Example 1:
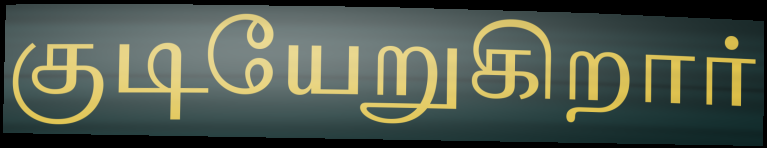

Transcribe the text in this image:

குடியேறுகிறார்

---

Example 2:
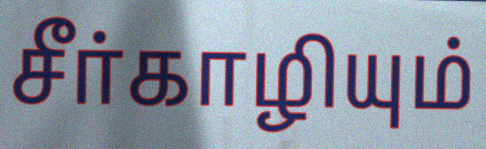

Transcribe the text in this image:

சீர்காழியும்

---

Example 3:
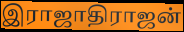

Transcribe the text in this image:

இராஜாதிராஜன்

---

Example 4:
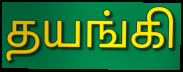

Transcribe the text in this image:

தயங்கி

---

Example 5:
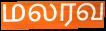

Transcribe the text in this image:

மலரவ